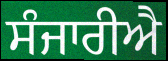
ਸੰਜਾਰੀਐ